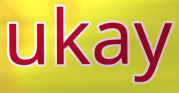
ukay